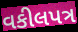
વકીલપત્ર